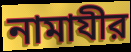
নামাযীর